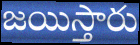
జయిస్తారు